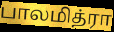
பாலமித்ரா